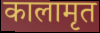
कालामृत